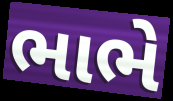
ભાભે